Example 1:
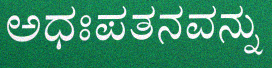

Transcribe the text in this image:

ಅಧಃಪತನವನ್ನು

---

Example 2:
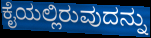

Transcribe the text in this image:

ಕೈಯಲ್ಲಿರುವುದನ್ನು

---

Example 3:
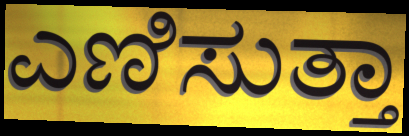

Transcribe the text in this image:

ಎಣಿಸುತ್ತಾ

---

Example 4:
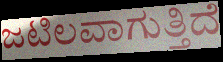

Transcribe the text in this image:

ಜಟಿಲವಾಗುತ್ತಿದೆ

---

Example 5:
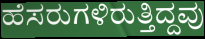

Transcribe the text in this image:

ಹೆಸರುಗಳಿರುತ್ತಿದ್ದವು